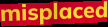
misplaced